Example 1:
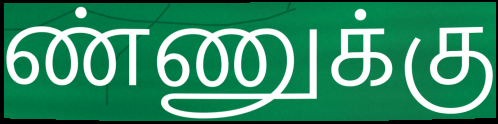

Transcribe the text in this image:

ண்ணுக்கு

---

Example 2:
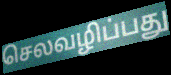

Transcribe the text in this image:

செலவழிப்பது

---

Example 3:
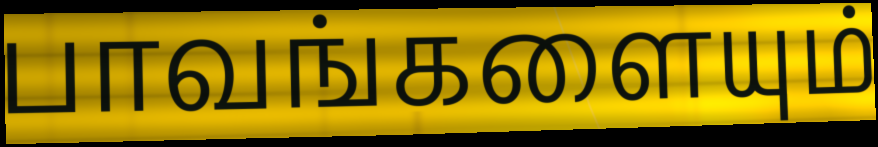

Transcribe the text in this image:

பாவங்களையும்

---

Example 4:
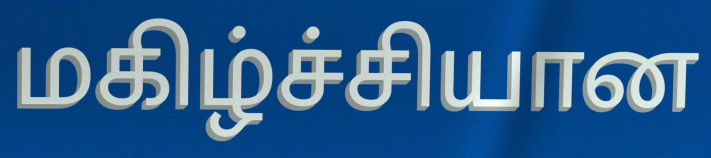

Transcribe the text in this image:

மகிழ்ச்சியான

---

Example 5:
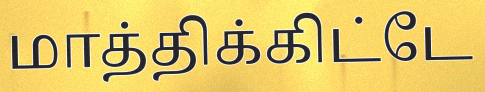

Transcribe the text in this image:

மாத்திக்கிட்டே